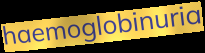
haemoglobinuria